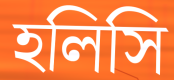
হলিসি